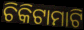
ଚିକିଟାମାଟି